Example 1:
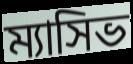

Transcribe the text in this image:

ম্যাসিভ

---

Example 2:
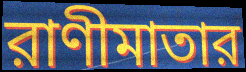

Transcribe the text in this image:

রাণীমাতার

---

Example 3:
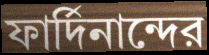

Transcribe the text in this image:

ফার্দিনান্দের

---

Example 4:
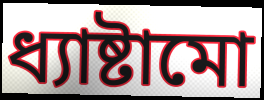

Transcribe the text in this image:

ধ্যাষ্টামো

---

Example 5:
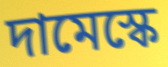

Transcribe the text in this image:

দামেস্কে